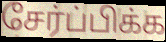
சேர்ப்பிக்க